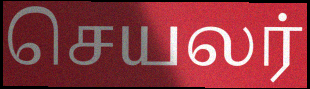
செயலர்